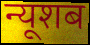
न्यूशब